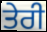
ਤੇਰੀ